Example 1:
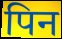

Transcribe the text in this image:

पिन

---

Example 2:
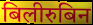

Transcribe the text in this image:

बिलीरुबिन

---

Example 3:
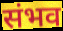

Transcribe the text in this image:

संभव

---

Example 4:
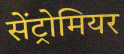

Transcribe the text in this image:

सेंट्रोमियर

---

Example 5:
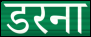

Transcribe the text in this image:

डरना